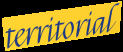
territorial